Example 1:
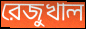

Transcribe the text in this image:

রেজুখাল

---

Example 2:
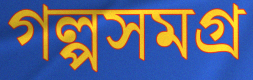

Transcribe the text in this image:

গল্পসমগ্র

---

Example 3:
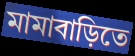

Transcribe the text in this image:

মামাবাড়িতে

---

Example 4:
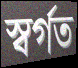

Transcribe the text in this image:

স্বর্গত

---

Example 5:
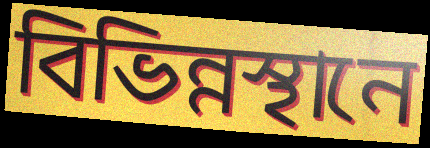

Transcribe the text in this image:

বিভিন্নস্থানে